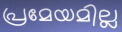
പ്രമേയമില്ല